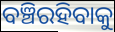
ବଞ୍ଚିରହିବାକୁ